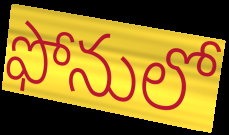
ఫోనులో